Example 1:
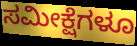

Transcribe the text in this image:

ಸಮೀಕ್ಷೆಗಳೂ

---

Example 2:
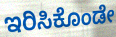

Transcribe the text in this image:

ಇರಿಸಿಕೊಂಡೇ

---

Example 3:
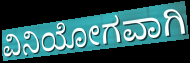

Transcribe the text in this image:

ವಿನಿಯೋಗವಾಗಿ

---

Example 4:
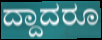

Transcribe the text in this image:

ದ್ದಾದರೂ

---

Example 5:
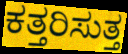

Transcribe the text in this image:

ಕತ್ತರಿಸುತ್ತ